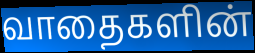
வாதைகளின்